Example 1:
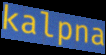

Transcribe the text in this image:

kalpna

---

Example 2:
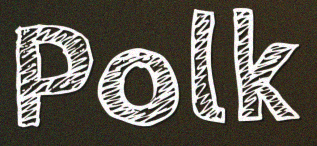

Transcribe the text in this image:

Polk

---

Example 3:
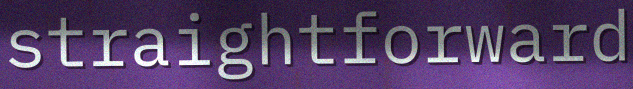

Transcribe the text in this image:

straightforward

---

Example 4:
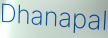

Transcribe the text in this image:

Dhanapal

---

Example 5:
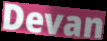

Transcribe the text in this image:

Devan